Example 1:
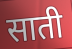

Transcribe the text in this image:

साती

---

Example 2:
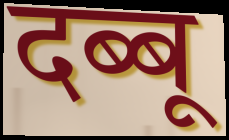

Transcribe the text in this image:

दब्बू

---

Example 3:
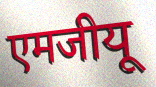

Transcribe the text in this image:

एमजीयू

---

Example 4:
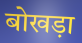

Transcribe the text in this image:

बोखड़ा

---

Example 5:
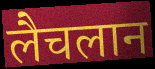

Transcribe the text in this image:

लैचलान